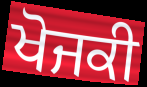
ਖੋਜਕੀ